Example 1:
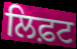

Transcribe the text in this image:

ਲਿਫ਼ਟ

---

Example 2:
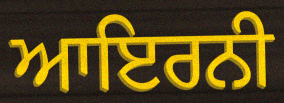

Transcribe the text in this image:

ਆਇਰਨੀ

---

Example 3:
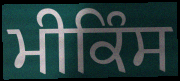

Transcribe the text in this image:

ਮੀਕਿੰਸ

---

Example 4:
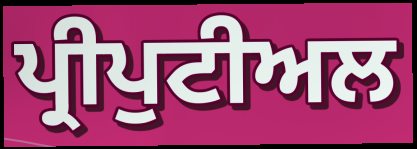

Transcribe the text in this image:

ਪ੍ਰੀਪੁਟੀਅਲ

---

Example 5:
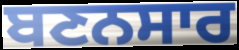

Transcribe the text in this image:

ਬਣਨਸਾਰ